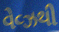
વેવ્ઝથી